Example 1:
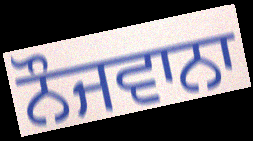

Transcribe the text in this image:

ਨੌਜਵਾਨਾ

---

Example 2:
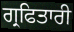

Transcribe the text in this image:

ਗ੍ਰਫਿਤਾਰੀ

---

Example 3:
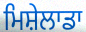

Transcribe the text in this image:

ਮਿਸ਼ੇਲਾਡਾ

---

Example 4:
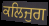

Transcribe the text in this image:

ਕਲਿਜੁਗ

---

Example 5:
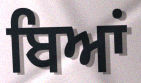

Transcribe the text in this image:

ਬਿਆਂ